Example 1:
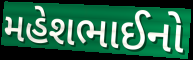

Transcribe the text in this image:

મહેશભાઈનો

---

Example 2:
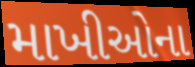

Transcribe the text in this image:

માખીઓના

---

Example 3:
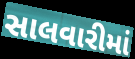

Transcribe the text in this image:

સાલવારીમાં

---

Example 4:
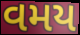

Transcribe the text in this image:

વમય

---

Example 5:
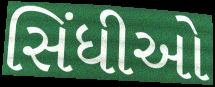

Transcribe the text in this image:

સિંધીઓ